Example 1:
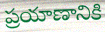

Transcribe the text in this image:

ప్రయాణానికి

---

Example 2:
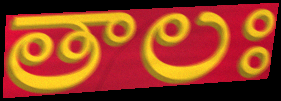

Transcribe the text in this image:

తాలః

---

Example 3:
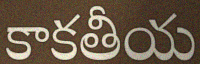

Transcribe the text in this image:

కాకతీయ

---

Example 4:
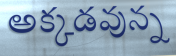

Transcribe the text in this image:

అక్కడవున్న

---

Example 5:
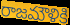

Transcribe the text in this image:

రాజమౌళికి